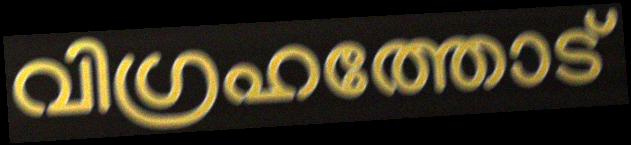
വിഗ്രഹത്തോട്